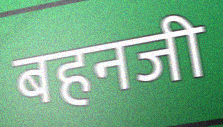
बहनजी